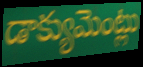
డాక్యుమెంట్లు